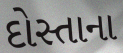
દોસ્તાના